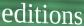
editions